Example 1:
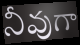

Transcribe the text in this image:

నీవుగా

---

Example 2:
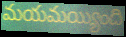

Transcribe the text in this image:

మయమయ్యింది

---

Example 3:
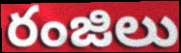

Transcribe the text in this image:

రంజిలు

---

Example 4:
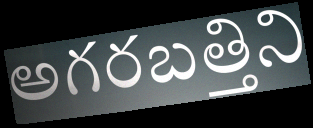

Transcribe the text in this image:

అగరబత్తిని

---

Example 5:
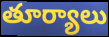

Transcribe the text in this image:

తూర్యాలు